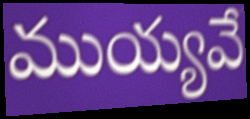
ముయ్యవే